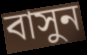
বাসুন